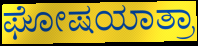
ಘೋಷಯಾತ್ರಾ